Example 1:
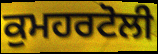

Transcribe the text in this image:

ਕੁਮਹਰਟੋਲੀ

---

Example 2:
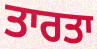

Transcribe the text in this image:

ਤਾਰਤਾ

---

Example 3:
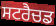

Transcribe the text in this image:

ਸਟਰੈਚਡ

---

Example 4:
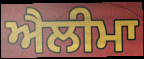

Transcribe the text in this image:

ਐਲੀਮਾ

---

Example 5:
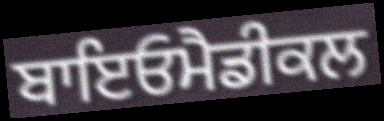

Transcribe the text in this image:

ਬਾਇਓਮੈਡੀਕਲ